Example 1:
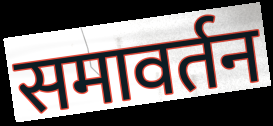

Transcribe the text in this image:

समावर्तन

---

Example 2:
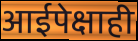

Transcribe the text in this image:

आईपेक्षाही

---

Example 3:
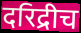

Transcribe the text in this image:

दरिद्रीच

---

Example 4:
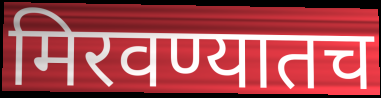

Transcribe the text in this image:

मिरवण्यातच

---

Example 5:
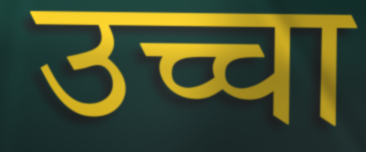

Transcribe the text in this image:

उच्चा